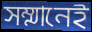
সম্মানেই